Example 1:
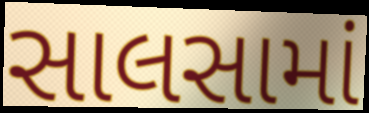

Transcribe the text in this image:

સાલસામાં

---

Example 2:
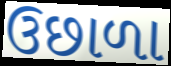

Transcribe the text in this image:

ઉછાળા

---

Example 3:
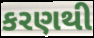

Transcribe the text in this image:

કરણથી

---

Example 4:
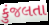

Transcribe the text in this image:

કુંજલતા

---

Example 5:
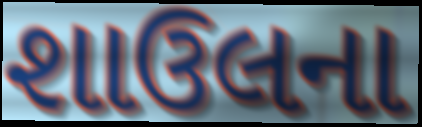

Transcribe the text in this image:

શાઉલના